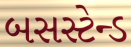
બસસ્ટેન્ડ